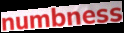
numbness